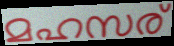
മഹസര്